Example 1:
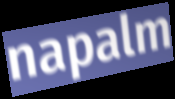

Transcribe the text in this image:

napalm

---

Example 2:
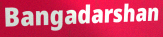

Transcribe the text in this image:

Bangadarshan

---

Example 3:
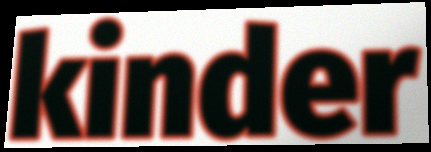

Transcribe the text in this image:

kinder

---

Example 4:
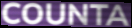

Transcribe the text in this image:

COUNTA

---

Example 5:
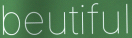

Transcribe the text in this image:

beutiful